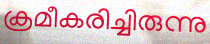
ക്രമീകരിച്ചിരുന്നു